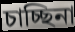
চাচ্ছিনা